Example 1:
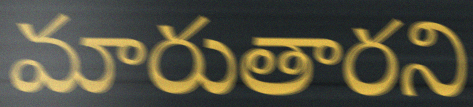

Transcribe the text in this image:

మారుతారని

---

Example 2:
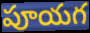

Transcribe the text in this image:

పూయగ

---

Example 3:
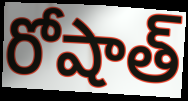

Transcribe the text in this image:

రోషాత్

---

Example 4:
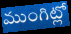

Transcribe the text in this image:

ముంగిట్లో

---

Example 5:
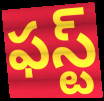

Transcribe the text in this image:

ఫస్ట్